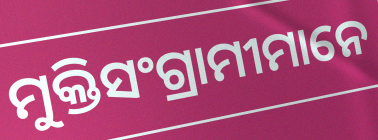
ମୁକ୍ତିସଂଗ୍ରାମୀମାନେ